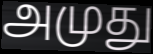
அமுது